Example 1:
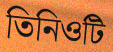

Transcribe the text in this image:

তিনিওটি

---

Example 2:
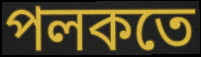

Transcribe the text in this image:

পলকতে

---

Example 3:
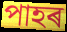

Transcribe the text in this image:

পাহৰ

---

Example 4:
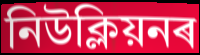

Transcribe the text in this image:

নিউক্লিয়নৰ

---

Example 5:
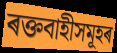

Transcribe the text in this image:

ৰক্তবাহীসমূহৰ